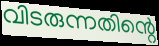
വിടരുന്നതിന്റെ